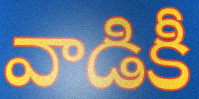
వాడికీ